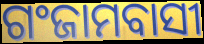
ଗଂଜାମବାସୀ